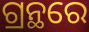
ଗ୍ରନ୍ଥରେ